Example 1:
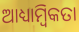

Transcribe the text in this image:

ଆଧ୍ୟାମ୍ବିକତା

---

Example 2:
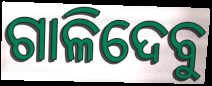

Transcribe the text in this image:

ଗାଳିଦେବୁ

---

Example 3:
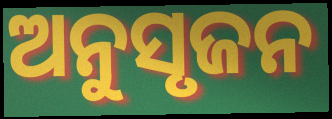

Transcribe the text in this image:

ଅନୁସୃଜନ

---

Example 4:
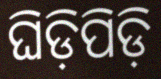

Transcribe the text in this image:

ଘିଡ଼ିପିଡ଼ି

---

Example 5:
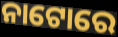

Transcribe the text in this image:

ନାଟୋରେ